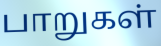
பாறுகள்